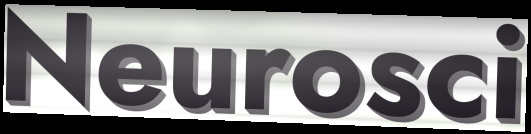
Neurosci